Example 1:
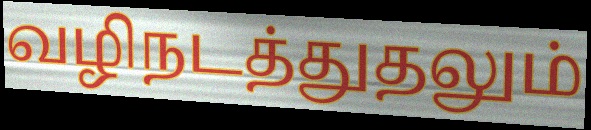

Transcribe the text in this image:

வழிநடத்துதலும்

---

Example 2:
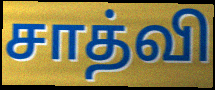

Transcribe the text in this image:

சாத்வி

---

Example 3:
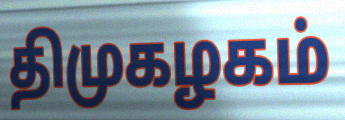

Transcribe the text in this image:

திமுகழகம்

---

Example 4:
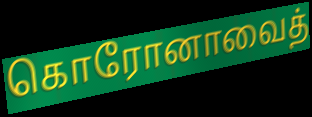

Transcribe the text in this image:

கொரோனாவைத்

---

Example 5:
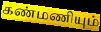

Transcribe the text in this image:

கண்மணியும்